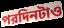
পরদিনটাও